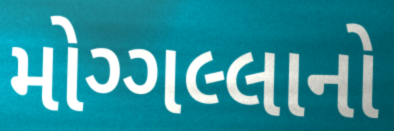
મોગ્ગલ્લાનો